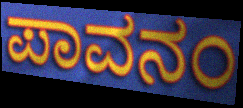
ಪಾವನಂ